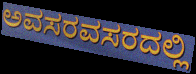
ಅವಸರವಸರದಲ್ಲಿ